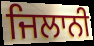
ਜਿਲਾਨੀ